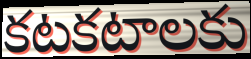
కటకటాలకు